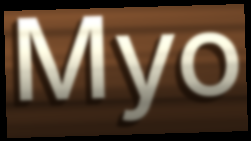
Myo